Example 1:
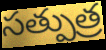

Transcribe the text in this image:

సత్పుత్ర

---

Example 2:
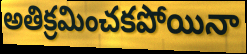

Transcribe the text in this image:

అతిక్రమించకపోయినా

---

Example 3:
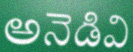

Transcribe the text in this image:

అనెడివి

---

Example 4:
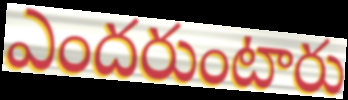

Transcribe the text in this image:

ఎందరుంటారు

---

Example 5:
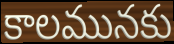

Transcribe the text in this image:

కాలమునకు